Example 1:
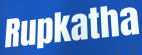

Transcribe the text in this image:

Rupkatha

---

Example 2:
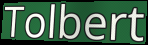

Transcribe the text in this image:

Tolbert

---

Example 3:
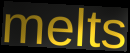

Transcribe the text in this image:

melts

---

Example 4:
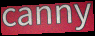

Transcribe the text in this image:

canny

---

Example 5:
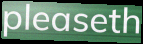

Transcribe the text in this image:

pleaseth